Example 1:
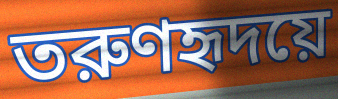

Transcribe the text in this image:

তরুণহৃদয়ে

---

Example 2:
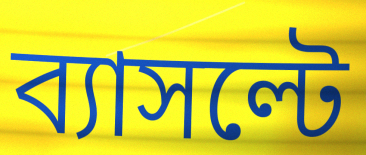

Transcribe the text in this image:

ব্যাসল্টে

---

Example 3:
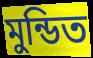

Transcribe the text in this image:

মুন্ডিত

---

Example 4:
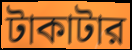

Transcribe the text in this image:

টাকাটার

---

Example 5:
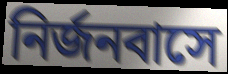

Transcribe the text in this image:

নির্জনবাসে